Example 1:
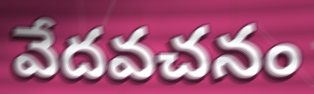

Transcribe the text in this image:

వేదవచనం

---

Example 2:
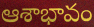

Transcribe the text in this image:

ఆశాభావం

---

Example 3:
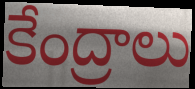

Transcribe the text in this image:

కేంద్రాలు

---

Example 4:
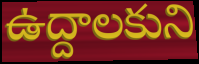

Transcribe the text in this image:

ఉద్దాలకుని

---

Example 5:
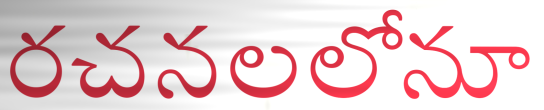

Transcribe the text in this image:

రచనలలోనూ